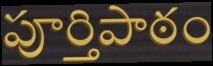
పూర్తిపాఠం